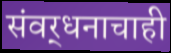
संवर्धनाचाही